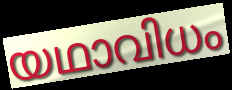
യഥാവിധം